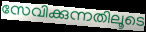
സേവിക്കുന്നതിലൂടെ